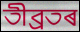
তীব্ৰতৰ